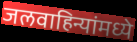
जलवाहिन्यांमध्ये